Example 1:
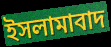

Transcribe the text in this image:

ইসলামাবাদ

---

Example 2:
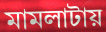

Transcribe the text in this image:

মামলাটায়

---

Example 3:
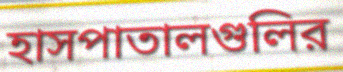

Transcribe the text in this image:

হাসপাতালগুলির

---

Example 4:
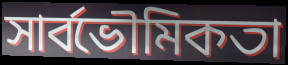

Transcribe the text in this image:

সার্বভৌমিকতা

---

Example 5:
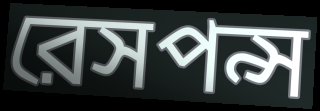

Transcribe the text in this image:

রেসপন্স